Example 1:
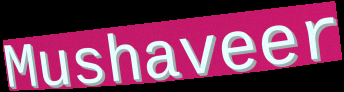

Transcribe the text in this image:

Mushaveer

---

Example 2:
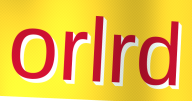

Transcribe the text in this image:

orlrd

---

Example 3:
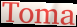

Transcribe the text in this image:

Toma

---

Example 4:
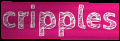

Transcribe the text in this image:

cripples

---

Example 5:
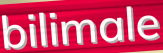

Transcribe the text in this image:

bilimale